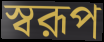
স্বরূপ